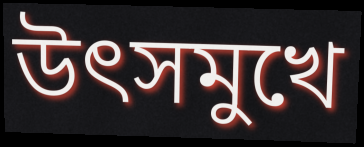
উৎসমুখে